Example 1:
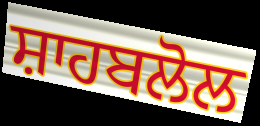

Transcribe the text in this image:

ਸ਼ਾਹਬਲੋਲ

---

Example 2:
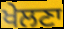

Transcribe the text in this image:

ਖੇਲਣਾ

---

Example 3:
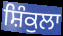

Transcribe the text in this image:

ਸ਼ਿੰਕੁਲਾ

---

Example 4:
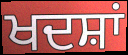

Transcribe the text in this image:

ਖਦਸ਼ਾਂ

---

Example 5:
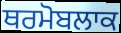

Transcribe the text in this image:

ਥਰਮੋਬਲਾਕ